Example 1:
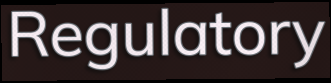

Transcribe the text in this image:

Regulatory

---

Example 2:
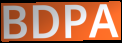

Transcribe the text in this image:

BDPA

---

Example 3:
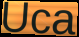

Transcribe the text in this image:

Uca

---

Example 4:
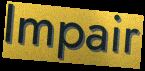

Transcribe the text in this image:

Impair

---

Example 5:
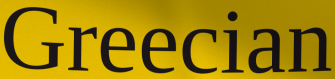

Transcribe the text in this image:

Greecian